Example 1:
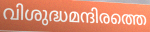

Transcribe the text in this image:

വിശുദ്ധമന്ദിരത്തെ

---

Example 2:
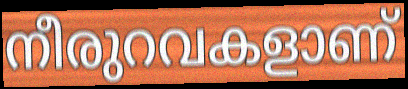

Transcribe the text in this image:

നീരുറവകളാണ്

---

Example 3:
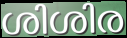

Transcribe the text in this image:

ശിശിര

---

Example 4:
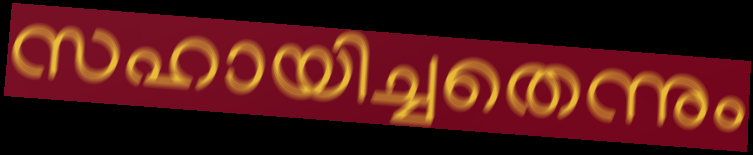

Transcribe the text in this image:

സഹായിച്ചതെന്നും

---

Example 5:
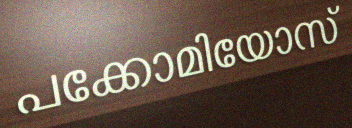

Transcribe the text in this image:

പക്കോമിയോസ്